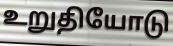
உறுதியோடு